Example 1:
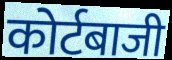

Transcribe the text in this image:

कोर्टबाजी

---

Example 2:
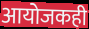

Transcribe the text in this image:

आयोजकही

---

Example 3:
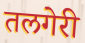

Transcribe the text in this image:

तलगेरी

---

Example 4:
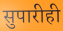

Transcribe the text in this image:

सुपारीही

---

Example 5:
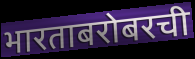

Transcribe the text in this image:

भारताबरोबरची